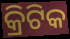
କ୍ରିଟିକ